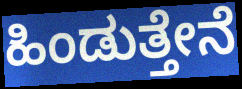
ಹಿಂಡುತ್ತೇನೆ